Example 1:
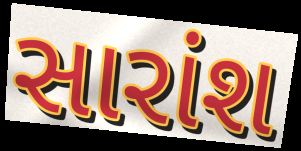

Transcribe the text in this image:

સારાંશ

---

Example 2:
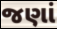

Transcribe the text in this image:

જણાં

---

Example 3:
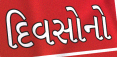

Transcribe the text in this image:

દિવસોનો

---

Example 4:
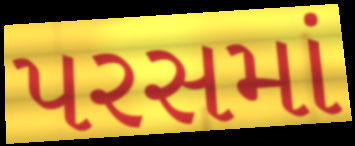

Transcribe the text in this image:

પરસમાં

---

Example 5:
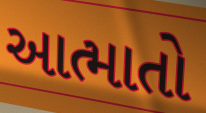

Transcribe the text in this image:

આત્માતો